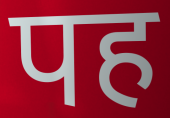
पह